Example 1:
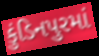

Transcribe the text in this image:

કુંડિનપુરમાં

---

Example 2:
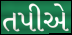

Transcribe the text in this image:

તપીએ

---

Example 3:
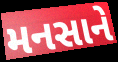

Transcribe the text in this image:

મનસાને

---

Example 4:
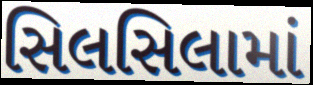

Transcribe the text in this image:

સિલસિલામાં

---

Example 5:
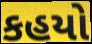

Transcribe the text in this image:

કહયો